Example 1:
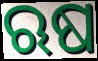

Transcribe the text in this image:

ଋଷ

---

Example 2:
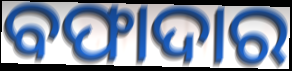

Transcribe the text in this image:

ବଫାଦାର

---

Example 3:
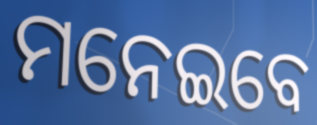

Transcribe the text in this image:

ମନେଇବେ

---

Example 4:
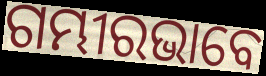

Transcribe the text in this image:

ଗମ୍ଭୀରଭାବେ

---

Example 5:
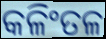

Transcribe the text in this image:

କଳିଂତଳ